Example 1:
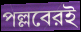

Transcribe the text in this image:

পল্লবেরই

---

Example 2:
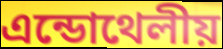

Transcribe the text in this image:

এন্ডোথেলীয়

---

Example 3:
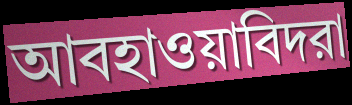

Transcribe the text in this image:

আবহাওয়াবিদরা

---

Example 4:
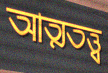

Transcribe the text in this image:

আত্মতত্ত্ব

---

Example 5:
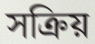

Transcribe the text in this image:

সক্রিয়